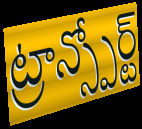
ట్రాన్స్పోర్ట్